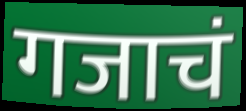
गजाचं